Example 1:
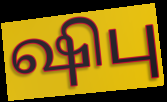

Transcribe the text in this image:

ஷிபு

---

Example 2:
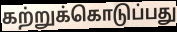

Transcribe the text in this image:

கற்றுக்கொடுப்பது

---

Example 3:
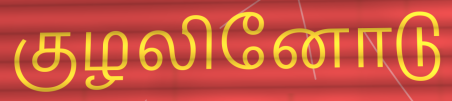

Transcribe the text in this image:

குழலினோடு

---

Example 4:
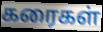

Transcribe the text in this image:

கரைகள்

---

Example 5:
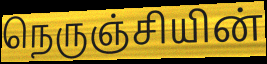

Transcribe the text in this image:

நெருஞ்சியின்